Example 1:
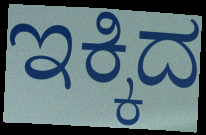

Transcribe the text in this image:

ಇಕ್ಕಿದ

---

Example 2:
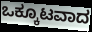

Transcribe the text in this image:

ಒಕ್ಕೂಟವಾದ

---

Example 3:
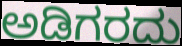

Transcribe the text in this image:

ಅಡಿಗರದು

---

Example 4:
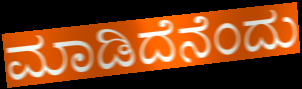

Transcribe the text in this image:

ಮಾಡಿದೆನೆಂದು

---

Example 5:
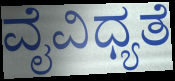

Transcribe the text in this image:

ವೈವಿಧ್ಯತೆ